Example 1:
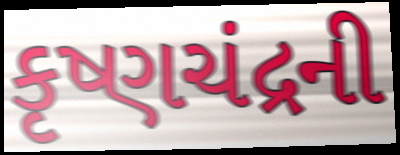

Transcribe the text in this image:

કૃષ્ણચંદ્રની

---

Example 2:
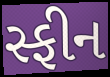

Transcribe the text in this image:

સ્ફીન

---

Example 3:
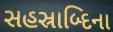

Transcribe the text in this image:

સહસ્રાબ્દિના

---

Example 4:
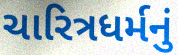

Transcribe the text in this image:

ચારિત્રધર્મનું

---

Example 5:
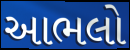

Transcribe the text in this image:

આભલો